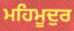
ਮਹਿਮੂਦੁਰ